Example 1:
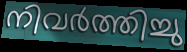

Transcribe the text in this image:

നിവർത്തിച്ചു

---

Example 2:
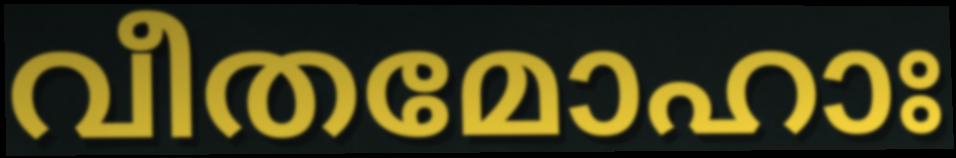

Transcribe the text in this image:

വീതമോഹാഃ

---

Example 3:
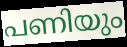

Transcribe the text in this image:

പണിയും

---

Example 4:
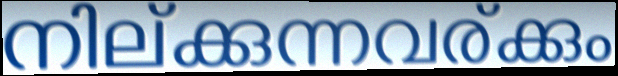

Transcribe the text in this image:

നില്ക്കുന്നവര്ക്കും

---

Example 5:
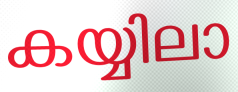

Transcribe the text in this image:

കയ്യിലാ